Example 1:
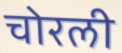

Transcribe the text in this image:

चोरली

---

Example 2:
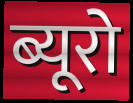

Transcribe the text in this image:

ब्यूरो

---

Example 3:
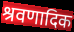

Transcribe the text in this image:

श्रवणादिक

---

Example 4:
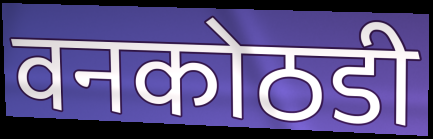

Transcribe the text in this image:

वनकोठडी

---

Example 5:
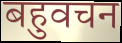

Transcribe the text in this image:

बहुवचन